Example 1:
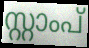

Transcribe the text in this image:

സ്റ്റാംപ്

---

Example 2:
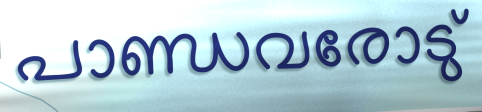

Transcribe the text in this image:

പാണ്ഡവരോടു്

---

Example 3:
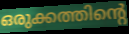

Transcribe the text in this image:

ഒരുക്കത്തിന്റെ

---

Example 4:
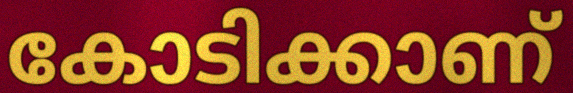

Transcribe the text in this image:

കോടിക്കാണ്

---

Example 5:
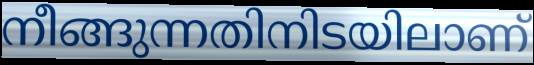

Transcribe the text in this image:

നീങ്ങുന്നതിനിടയിലാണ്